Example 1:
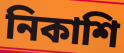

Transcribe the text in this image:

নিকাশি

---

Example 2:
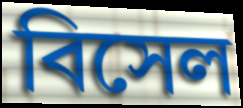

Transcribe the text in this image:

বিসেল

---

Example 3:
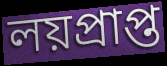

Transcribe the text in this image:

লয়প্রাপ্ত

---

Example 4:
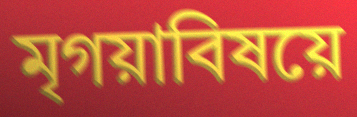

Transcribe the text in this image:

মৃগয়াবিষয়ে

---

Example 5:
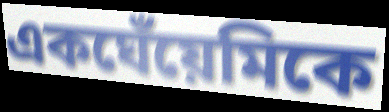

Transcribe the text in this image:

একঘেঁয়েমিকে